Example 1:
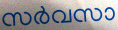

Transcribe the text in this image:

സർവസാ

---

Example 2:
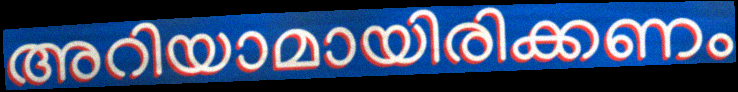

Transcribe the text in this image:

അറിയാമായിരിക്കണം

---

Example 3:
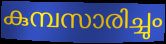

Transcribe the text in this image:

കുമ്പസാരിച്ചും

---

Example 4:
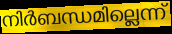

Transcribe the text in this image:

നിർബന്ധമില്ലെന്ന്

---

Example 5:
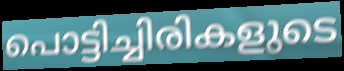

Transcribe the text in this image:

പൊട്ടിച്ചിരികളുടെ